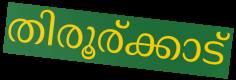
തിരൂര്ക്കാട്